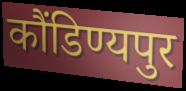
कौंडिण्यपुर